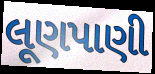
લૂણપાણી